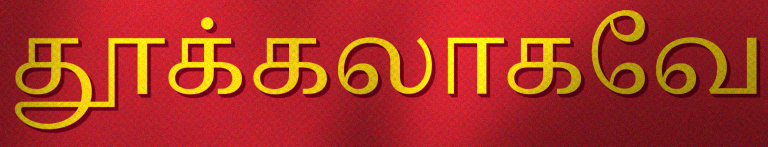
தூக்கலாகவே